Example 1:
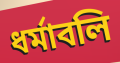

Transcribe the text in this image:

ধর্মাবলি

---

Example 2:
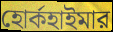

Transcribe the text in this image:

হোর্কহাইমার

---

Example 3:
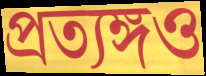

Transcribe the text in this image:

প্রত্যঙ্গও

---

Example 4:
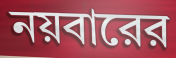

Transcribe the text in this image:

নয়বারের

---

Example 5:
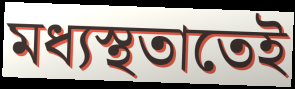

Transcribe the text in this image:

মধ্যস্থতাতেই